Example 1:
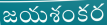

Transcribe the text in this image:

జయశంకర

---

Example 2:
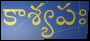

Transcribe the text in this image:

కాశ్యపః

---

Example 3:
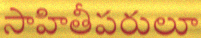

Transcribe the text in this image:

సాహితీపరులూ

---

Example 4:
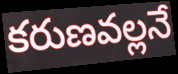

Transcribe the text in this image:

కరుణవల్లనే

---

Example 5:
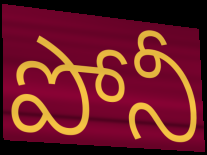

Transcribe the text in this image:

పోనీ